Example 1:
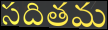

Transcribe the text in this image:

సదితమ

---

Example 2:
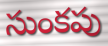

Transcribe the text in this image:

సుంకపు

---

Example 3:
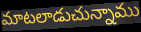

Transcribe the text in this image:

మాటలాడుచున్నాము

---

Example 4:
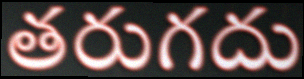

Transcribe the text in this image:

తరుగదు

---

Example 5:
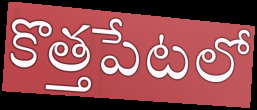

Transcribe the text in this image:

కొత్తపేటలో